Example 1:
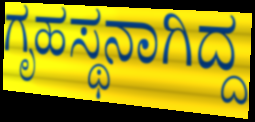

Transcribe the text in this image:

ಗೃಹಸ್ಥನಾಗಿದ್ದ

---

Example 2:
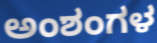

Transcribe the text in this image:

ಅಂಶಂಗಳ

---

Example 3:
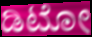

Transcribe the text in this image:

ಡಿಟೋ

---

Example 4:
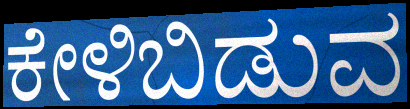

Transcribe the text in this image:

ಕೇಳಿಬಿಡುವ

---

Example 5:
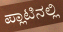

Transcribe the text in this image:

ಪ್ಲಾಟಿನಲ್ಲಿ